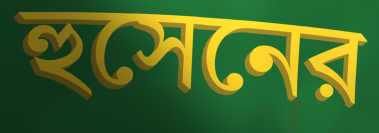
হুসেনের